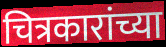
चित्रकारांच्या